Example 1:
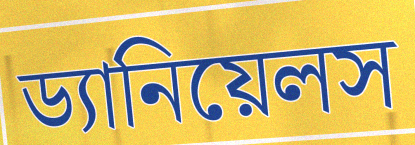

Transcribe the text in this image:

ড্যানিয়েলস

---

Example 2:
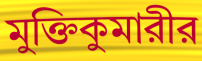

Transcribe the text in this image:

মুক্তিকুমারীর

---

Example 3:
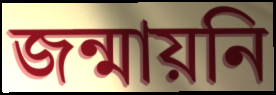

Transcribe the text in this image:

জন্মায়নি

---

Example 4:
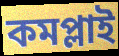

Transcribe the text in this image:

কমপ্লাই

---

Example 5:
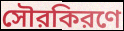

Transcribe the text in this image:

সৌরকিরণে